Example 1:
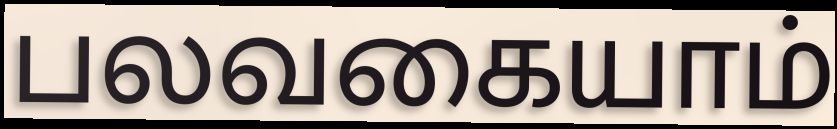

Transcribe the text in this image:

பலவகையாம்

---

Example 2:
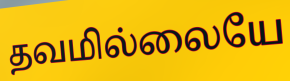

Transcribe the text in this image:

தவமில்லையே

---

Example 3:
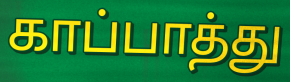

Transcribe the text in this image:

காப்பாத்து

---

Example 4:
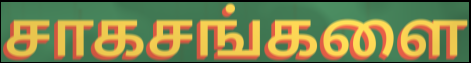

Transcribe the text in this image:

சாகசங்களை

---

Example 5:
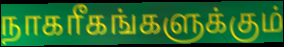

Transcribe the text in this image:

நாகரீகங்களுக்கும்